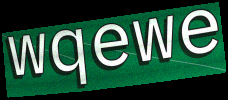
wqewe